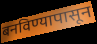
बनविण्यापासून